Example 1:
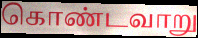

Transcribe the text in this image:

கொண்டவாறு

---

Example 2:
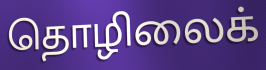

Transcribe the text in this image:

தொழிலைக்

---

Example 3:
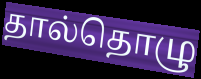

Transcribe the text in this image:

தால்தொழு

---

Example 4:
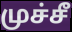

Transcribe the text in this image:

முச்சீ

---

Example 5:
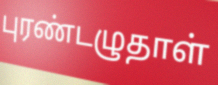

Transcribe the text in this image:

புரண்டழுதாள்